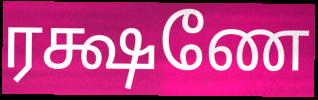
ரக்ஷணே